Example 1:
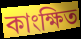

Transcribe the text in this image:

কাংক্ষিত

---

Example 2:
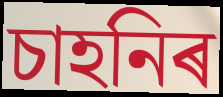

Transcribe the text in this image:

চাহনিৰ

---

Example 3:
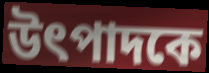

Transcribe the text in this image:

উৎপাদকে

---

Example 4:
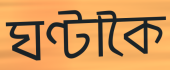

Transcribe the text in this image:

ঘণ্টাকৈ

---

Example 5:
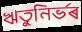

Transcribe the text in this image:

ঋতুনিৰ্ভৰ